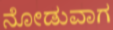
ನೋಡುವಾಗ